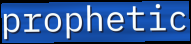
prophetic